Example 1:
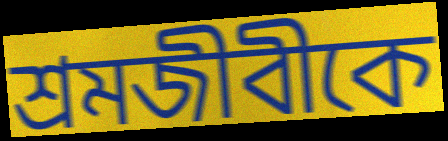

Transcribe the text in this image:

শ্রমজীবীকে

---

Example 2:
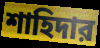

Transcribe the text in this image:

শাহিদার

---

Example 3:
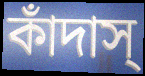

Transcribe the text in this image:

কাঁদাস্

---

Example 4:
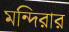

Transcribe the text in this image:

মন্দিরার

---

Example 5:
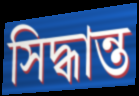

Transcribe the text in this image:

সিদ্ধান্ত